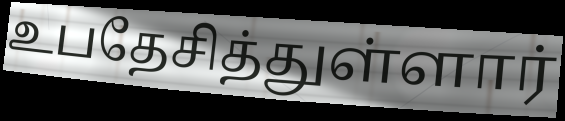
உபதேசித்துள்ளார்